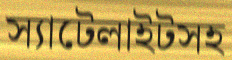
স্যাটেলাইটসহ